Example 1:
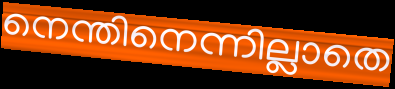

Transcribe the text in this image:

നെന്തിനെന്നില്ലാതെ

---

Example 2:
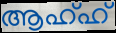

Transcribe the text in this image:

ആഹ്ഹ്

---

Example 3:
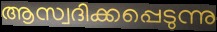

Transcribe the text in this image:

ആസ്വദിക്കപ്പെടുന്നു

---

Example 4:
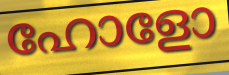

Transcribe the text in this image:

ഹോളോ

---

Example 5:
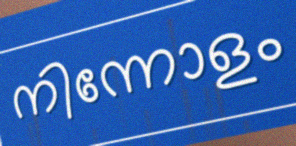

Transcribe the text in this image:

നിന്നോളം